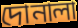
দোনালা